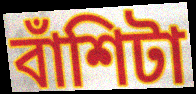
বাঁশিটা